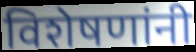
विशेषणांनी